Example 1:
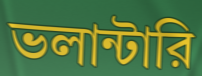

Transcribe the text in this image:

ভলান্টারি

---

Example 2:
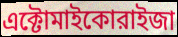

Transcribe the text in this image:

এক্টোমাইকোরাইজা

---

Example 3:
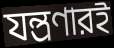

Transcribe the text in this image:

যন্ত্রণারই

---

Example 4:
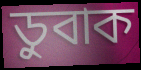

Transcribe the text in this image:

ডুবাক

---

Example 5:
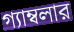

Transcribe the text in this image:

গ্যাম্বলার